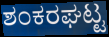
ಶಂಕರಘಟ್ಟ